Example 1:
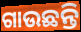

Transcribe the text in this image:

ଗାଉଛନ୍ତି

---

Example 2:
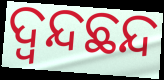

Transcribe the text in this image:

ଦ୍ୱନ୍ଦଛନ୍ଦ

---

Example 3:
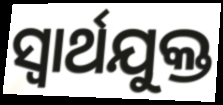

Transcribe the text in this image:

ସ୍ୱାର୍ଥଯୁକ୍ତ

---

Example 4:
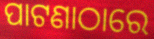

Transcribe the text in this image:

ପାଟଣାଠାରେ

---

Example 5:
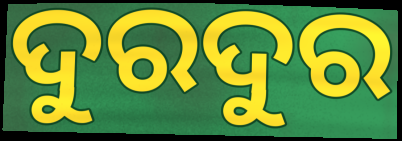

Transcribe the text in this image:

ଦୁରଦୁର